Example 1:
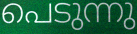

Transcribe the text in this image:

പെടുന്നു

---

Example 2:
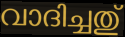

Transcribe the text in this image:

വാദിച്ചതു്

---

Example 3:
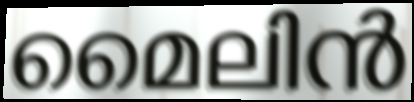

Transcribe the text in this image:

മൈലിൻ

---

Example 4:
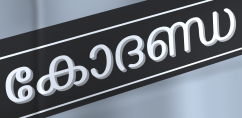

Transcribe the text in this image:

കോദണ്ഡ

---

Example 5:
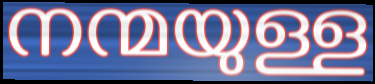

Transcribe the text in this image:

നന്മയുള്ള